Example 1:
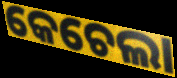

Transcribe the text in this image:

କେଚେଲା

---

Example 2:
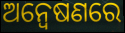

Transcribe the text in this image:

ଅନ୍ବେଷଣରେ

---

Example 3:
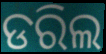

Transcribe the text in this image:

ଡରିଲ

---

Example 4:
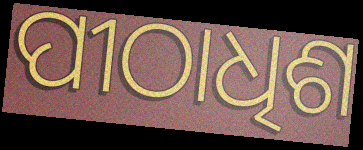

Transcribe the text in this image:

ପୀଠାଧିଶ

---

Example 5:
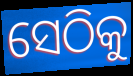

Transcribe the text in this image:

ସେଠିକୁ